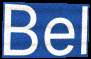
Bel